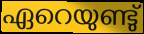
ഏറെയുണ്ടു്